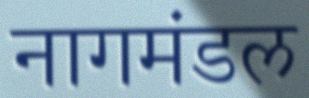
नागमंडल